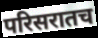
परिसरातच